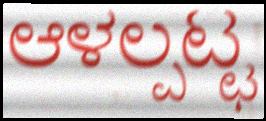
ಆಳಲ್ಪಟ್ಟ